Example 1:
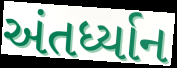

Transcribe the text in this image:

અંતર્ધ્યાન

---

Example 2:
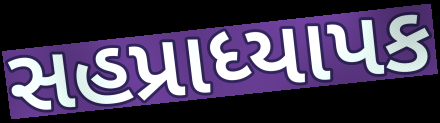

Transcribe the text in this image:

સહપ્રાધ્યાપક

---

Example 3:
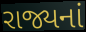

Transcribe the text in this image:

રાજ્યનાં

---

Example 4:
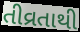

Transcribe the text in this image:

તીવ્રતાથી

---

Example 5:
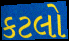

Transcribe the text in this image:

કટલો